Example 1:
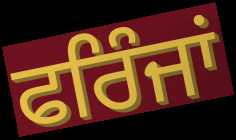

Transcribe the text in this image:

ਫਰਿੰਜਾਂ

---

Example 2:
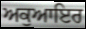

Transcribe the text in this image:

ਅਕੁਆਇਰ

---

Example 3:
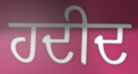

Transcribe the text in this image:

ਹਦੀਦ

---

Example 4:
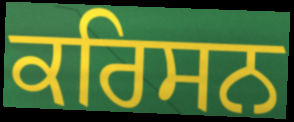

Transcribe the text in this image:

ਕਰਿਸਨ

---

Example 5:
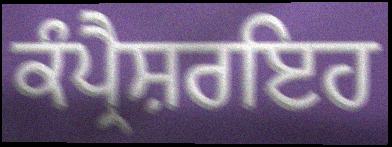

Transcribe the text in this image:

ਕੰਪ੍ਰੈਸ਼ਰਇਹ